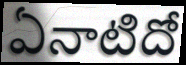
ఏనాటిదో